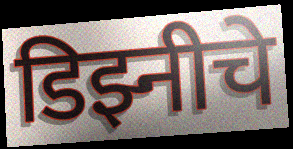
डिझ्नीचे